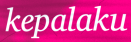
kepalaku